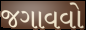
જગાવવો